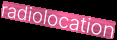
radiolocation